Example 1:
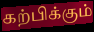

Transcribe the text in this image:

கற்பிக்கும்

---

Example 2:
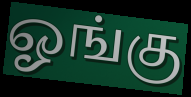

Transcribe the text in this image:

ஓங்கு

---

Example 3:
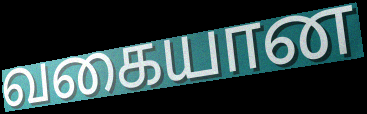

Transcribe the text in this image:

வகையான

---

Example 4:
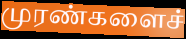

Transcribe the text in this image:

முரண்களைச்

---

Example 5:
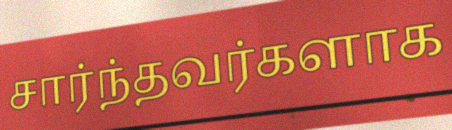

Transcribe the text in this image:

சார்ந்தவர்களாக